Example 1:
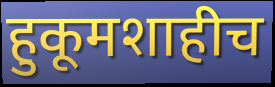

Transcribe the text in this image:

हुकूमशाहीच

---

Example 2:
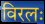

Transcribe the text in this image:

विरलः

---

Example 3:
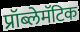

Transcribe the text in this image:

प्रॉब्लेमॅटिक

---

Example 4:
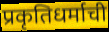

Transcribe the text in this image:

प्रकृतिधर्माची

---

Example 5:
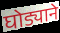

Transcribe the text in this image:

घोड्याने